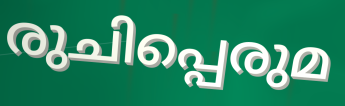
രുചിപ്പെരുമ